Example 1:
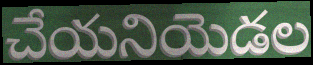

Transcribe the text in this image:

చేయనియెడల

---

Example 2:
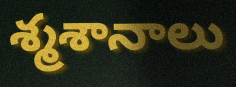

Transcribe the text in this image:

శ్మశానాలు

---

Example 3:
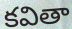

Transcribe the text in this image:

కవితా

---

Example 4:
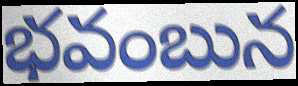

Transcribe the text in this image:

భవంబున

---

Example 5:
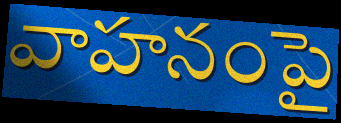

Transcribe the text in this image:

వాహనంపై